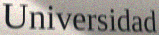
Universidad